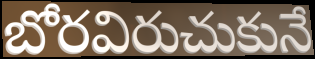
బోరవిరుచుకునే